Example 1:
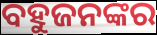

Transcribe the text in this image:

ବହୁଜନଙ୍କର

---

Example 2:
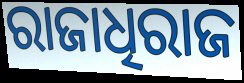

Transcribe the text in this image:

ରାଜାଧିରାଜ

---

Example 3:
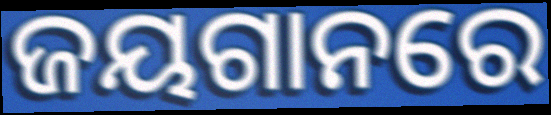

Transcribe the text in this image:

ଜୟଗାନରେ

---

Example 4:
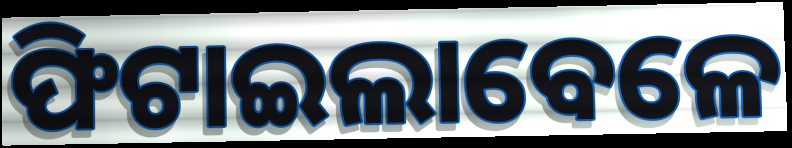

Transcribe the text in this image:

ଫିଟାଇଲାବେଳେ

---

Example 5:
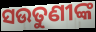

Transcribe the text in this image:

ସଉତୁଣୀଙ୍କ